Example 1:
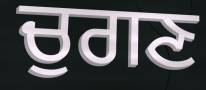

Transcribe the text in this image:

ਚੁਗਣ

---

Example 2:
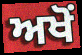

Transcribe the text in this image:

ਅਖੋਂ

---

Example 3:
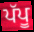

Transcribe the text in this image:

ਪੱਪੂ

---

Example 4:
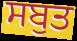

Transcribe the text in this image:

ਸਬੁਤ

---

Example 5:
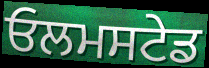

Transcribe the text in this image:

ਓਲਮਸਟੇਡ